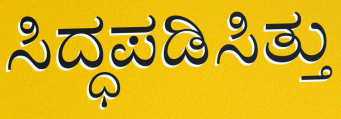
ಸಿದ್ಧಪಡಿಸಿತ್ತು